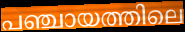
പഞ്ചായത്തിലെ